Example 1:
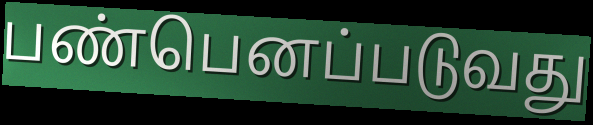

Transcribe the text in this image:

பண்பெனப்படுவது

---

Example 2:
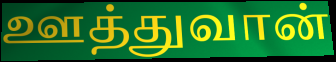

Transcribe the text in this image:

ஊத்துவான்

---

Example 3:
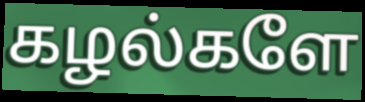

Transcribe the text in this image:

கழல்களே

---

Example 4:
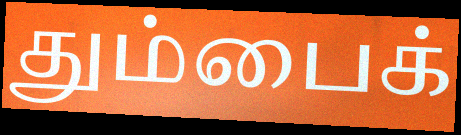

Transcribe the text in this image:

தும்பைக்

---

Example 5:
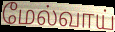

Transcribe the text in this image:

மேல்வாய்